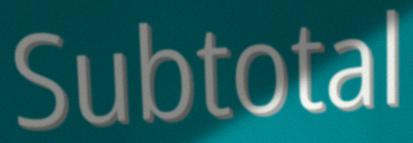
Subtotal